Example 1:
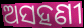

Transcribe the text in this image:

ଅସହଣୀ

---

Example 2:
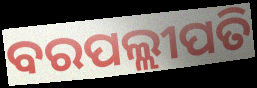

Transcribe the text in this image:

ବରପଲ୍ଲୀପତି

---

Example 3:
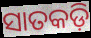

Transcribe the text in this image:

ସାତକଡ଼ି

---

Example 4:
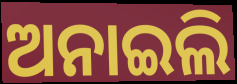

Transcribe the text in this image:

ଅନାଇଲି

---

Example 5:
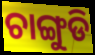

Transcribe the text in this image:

ଚାଙ୍ଗୁଡି